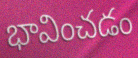
భావించడం